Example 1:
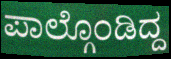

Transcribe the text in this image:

ಪಾಲ್ಗೊಂಡಿದ್ದ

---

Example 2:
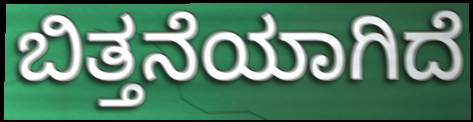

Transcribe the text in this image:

ಬಿತ್ತನೆಯಾಗಿದೆ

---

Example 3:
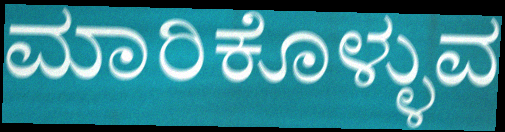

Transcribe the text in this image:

ಮಾರಿಕೊಳ್ಳುವ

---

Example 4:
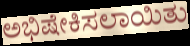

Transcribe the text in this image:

ಅಭಿಷೇಕಿಸಲಾಯಿತು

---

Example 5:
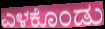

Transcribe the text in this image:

ಎಳಕೊಂಡು